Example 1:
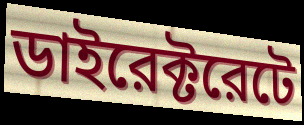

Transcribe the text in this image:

ডাইরেক্টরেটে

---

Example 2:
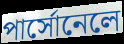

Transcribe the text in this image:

পার্সোনেলে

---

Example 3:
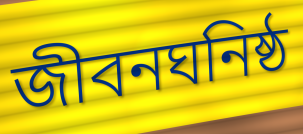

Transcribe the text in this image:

জীবনঘনিষ্ঠ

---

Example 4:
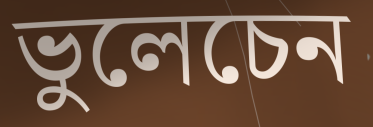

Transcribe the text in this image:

ভুলেচেন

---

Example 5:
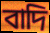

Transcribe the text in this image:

বাদি